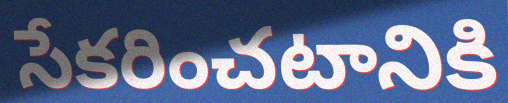
సేకరించటానికి